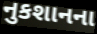
નુકશાનના